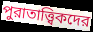
পুরাতাত্ত্বিকদের